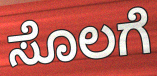
ಸೊಲಗೆ